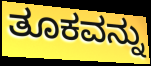
ತೂಕವನ್ನು